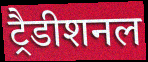
ट्रैडीशनल